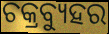
ଚକ୍ରବ୍ୟୁହର